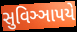
સુવિઞ્ઞાપયે